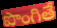
పొంగితే